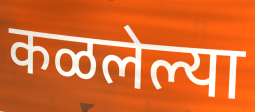
कळलेल्या